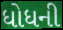
ધોધની